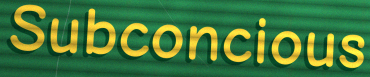
Subconcious